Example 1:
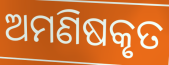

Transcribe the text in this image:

ଅମଣିଷକୃତ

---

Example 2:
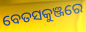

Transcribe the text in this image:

ବେତସକୁଞ୍ଜରେ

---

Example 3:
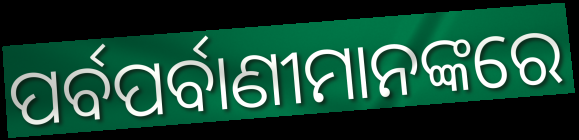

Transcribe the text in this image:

ପର୍ବପର୍ବାଣୀମାନଙ୍କରେ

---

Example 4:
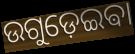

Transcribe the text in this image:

ଉଗୁଡ଼େଇଵା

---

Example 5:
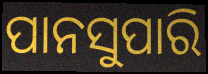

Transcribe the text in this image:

ପାନସୁପାରି